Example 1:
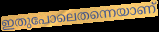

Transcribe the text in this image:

ഇതുപോലെതന്നെയാണ്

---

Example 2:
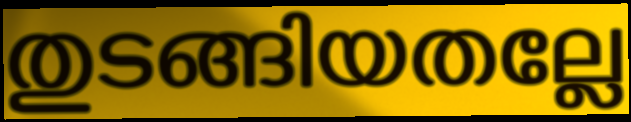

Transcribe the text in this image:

തുടങ്ങിയതല്ലേ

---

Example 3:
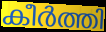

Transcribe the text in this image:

കീർത്തി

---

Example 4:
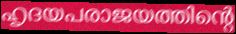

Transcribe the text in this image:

ഹൃദയപരാജയത്തിന്റെ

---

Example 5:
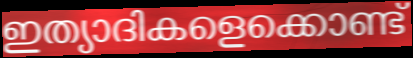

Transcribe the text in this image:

ഇത്യാദികളെക്കൊണ്ട്